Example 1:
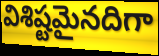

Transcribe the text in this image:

విశిష్టమైనదిగా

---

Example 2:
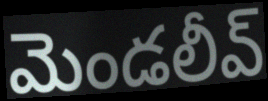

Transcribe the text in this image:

మెండలీవ్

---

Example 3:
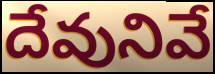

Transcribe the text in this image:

దేవునివే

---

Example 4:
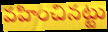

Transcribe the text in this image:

వహించినట్టు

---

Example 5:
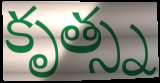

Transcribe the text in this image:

కృత్స్న